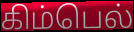
கிம்பெல்